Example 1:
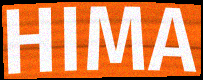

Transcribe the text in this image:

HIMA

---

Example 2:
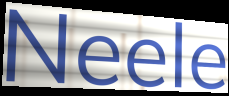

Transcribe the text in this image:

Neele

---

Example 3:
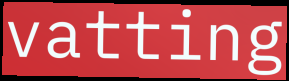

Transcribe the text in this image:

vatting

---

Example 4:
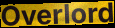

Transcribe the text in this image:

Overlord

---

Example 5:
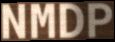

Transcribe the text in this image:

NMDP